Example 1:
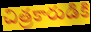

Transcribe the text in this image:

చిత్రకారుడికి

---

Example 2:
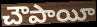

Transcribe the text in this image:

చౌపాయీ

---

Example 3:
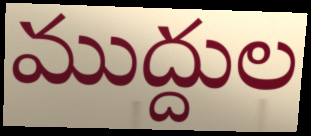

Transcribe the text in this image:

ముద్దుల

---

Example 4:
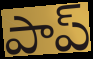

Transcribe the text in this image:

పాప్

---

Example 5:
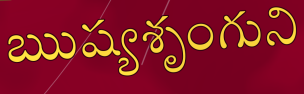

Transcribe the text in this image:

ఋష్యశృంగుని